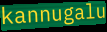
kannugalu